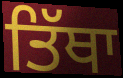
ਤਿੱਥਾ